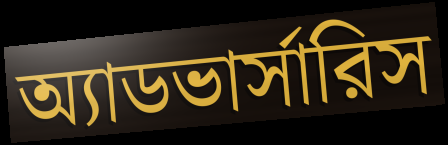
অ্যাডভার্সারিস